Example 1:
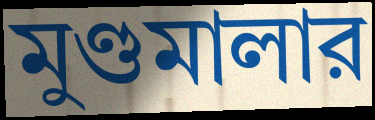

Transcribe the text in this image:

মুণ্ডমালার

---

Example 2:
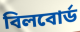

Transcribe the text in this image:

বিলবোর্ড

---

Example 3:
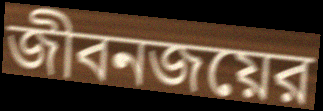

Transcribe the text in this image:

জীবনজয়ের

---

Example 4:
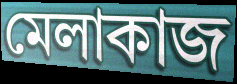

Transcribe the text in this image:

মেলাকাজ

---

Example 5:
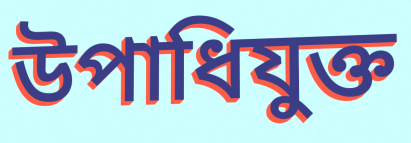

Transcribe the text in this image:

উপাধিযুক্ত